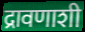
द्रावणाशी